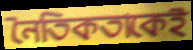
নৈতিকতাকেই